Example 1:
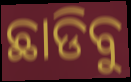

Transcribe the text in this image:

ଛାଡିବୁ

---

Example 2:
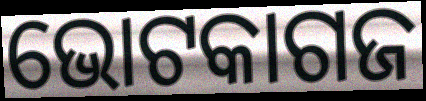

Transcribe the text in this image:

ଭୋଟକାଗଜ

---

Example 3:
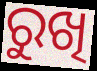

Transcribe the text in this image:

ରୁଖି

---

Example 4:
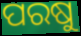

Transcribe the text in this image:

ପରଷୁ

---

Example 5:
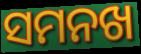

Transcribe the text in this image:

ସମନଖ